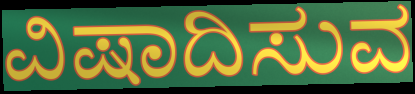
ವಿಷಾದಿಸುವ